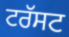
ਟਰੱਸਟ